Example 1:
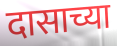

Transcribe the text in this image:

दासाच्या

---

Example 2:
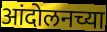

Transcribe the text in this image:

आंदोलनच्या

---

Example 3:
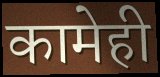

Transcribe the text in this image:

कामेही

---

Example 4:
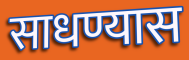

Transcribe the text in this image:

साधण्यास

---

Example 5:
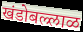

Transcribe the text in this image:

खंडोबल्लाळ